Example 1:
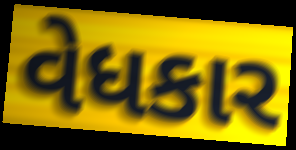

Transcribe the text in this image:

વેધકાર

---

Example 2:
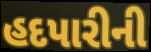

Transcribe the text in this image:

હદપારીની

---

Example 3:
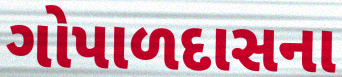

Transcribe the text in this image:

ગોપાળદાસના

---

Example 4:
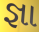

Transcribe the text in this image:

જ્ઞા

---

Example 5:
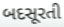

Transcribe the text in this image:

બદસૂરતી